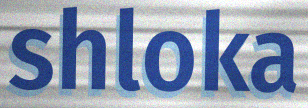
shloka